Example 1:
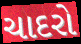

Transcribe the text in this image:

ચાદરો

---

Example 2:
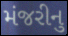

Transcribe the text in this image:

મંજરીનુ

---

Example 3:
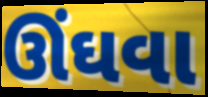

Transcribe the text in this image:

ઊંઘવા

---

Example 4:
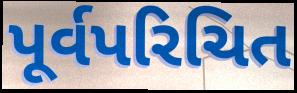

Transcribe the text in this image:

પૂર્વપરિચિત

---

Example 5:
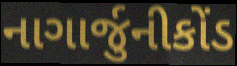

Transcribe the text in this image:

નાગાર્જુનીકોંડ